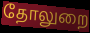
தோலுறை